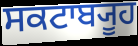
ਸਕਟਾਬ੍ਯੂਹ